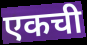
एकची